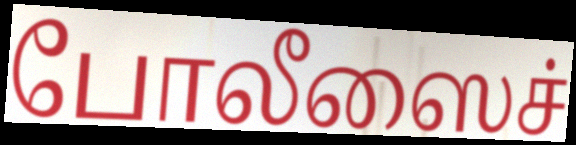
போலீஸைச்